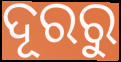
ଦୂରରୁ